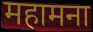
महामना